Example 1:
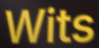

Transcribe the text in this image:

Wits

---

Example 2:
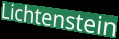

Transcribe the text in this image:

Lichtenstein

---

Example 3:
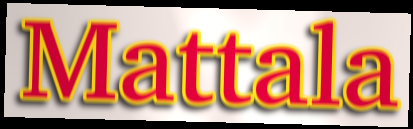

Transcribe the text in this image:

Mattala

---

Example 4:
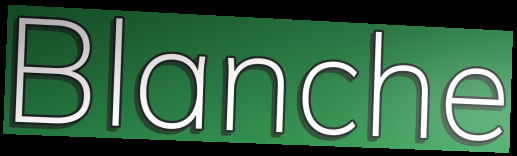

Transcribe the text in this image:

Blanche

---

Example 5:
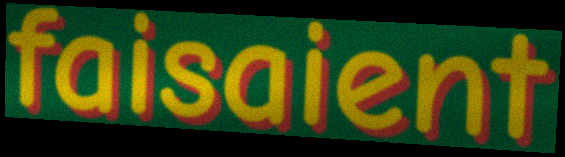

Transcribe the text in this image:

faisaient